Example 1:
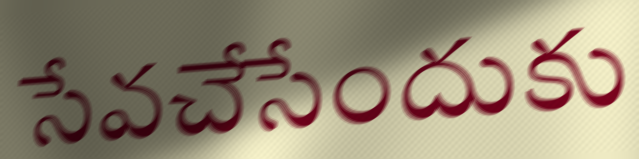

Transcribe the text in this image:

సేవచేసేందుకు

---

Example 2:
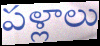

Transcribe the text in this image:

పళ్లాలు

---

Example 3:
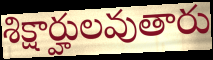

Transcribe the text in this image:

శిక్షార్హులవుతారు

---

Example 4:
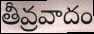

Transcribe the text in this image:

తీవ్రవాదం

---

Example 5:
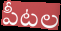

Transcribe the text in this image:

పీటల